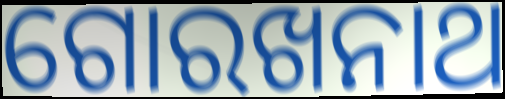
ଗୋରଖନାଥ